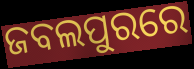
ଜବଲପୁରରେ